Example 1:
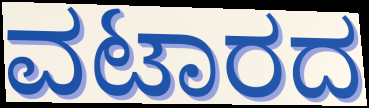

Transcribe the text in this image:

ವಟಾರದ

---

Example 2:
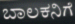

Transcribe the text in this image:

ಬಾಲಕನಿಗೆ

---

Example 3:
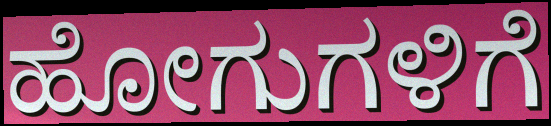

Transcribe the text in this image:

ಹೋಗುಗಳಿಗೆ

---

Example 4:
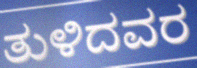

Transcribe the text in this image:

ತುಳಿದವರ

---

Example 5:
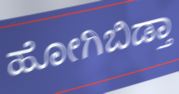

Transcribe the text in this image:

ಹೋಗಿಬಿಡ್ತಾ